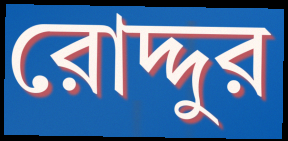
রোদ্দুর